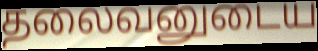
தலைவனுடைய